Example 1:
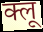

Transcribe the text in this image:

क्लू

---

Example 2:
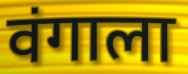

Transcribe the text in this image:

वंगाला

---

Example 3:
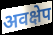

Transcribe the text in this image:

अवक्षेप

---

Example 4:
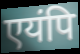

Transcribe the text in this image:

एयंपि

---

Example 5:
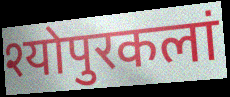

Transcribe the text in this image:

श्योपुरकलां